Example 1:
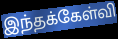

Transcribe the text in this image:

இந்தக்கேள்வி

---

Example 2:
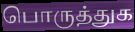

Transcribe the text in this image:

பொருத்துக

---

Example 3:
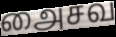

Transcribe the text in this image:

அைசவ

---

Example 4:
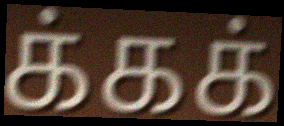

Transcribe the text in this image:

க்கக்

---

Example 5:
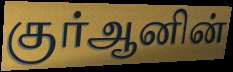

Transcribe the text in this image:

குர்ஆனின்